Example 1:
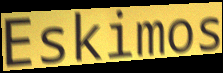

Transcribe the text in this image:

Eskimos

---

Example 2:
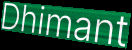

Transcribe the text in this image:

Dhimant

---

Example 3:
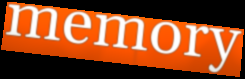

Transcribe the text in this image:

memory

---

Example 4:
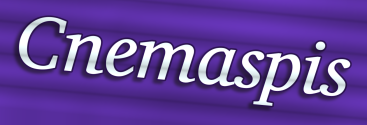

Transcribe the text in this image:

Cnemaspis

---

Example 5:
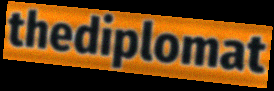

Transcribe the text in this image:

thediplomat